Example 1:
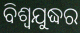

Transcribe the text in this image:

ବିଶ୍ବଯୁଦ୍ଧର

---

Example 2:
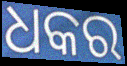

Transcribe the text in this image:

ଧକର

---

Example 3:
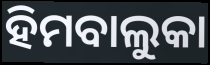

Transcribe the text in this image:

ହିମବାଲୁକା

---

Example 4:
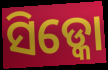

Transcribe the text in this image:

ସିଡ୍କୋ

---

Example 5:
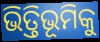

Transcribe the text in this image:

ଭିତ୍ତିଭୂମିକୁ